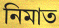
নিমাত